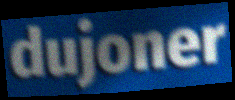
dujoner